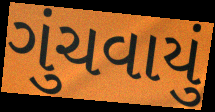
ગુંચવાયું